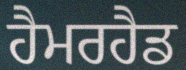
ਹੈਮਰਹੈਡ